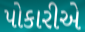
પોકારીએ